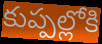
కుప్పల్లోకి